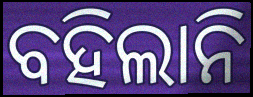
ବହିଲାନି